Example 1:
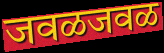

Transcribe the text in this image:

जवळजवळ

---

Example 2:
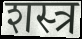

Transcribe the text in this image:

शस्त्र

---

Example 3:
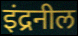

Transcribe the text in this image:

इंद्रनील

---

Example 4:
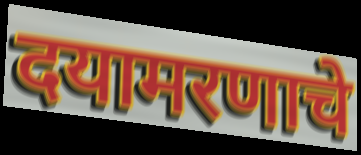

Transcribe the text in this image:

दयामरणाचे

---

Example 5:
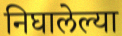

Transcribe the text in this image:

निघालेल्या